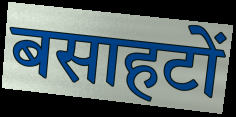
बसाहटों